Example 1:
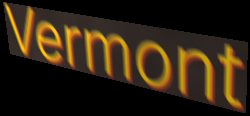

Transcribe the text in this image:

Vermont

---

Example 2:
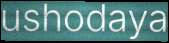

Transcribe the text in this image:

ushodaya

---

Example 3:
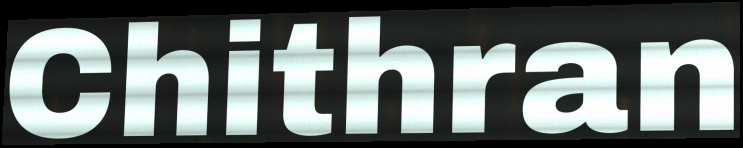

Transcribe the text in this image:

Chithran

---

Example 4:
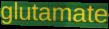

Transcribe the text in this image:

glutamate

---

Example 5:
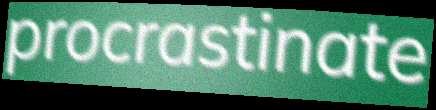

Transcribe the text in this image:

procrastinate